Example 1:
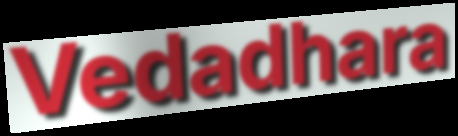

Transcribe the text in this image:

Vedadhara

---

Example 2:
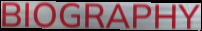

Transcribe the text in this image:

BIOGRAPHY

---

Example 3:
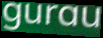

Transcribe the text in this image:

gurau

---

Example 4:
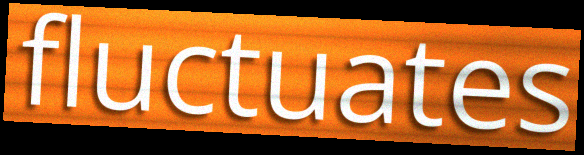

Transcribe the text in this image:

fluctuates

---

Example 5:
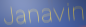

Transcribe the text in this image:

Janavin